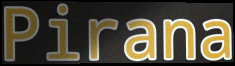
Pirana